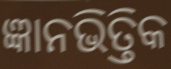
ଜ୍ଞାନଭିତ୍ତିକ